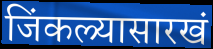
जिंकल्यासारखं